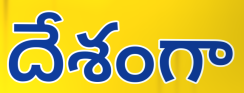
దేశంగా